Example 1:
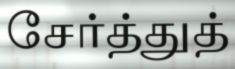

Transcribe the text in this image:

சேர்த்துத்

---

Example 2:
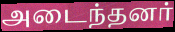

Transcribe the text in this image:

அடைந்தனர்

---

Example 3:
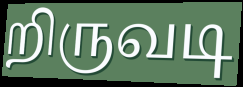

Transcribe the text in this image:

றிருவடி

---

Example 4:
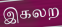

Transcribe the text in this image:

இகலற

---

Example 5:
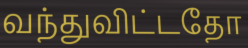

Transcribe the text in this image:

வந்துவிட்டதோ